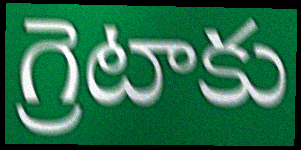
గ్రెటాకు